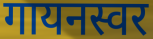
गायनस्वर